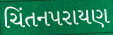
ચિંતનપરાયણ